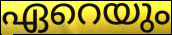
ഏറെയും